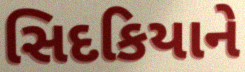
સિદકિયાને